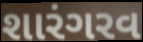
શારંગરવ